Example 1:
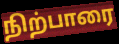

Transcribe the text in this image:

நிற்பாரை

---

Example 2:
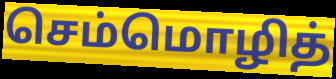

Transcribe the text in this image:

செம்மொழித்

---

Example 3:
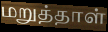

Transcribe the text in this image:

மறுத்தாள்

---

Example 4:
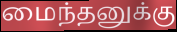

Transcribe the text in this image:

மைந்தனுக்கு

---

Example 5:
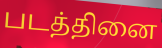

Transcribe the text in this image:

படத்தினை